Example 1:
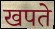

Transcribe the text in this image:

खपते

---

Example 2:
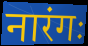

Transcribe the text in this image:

नारंगः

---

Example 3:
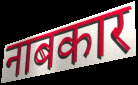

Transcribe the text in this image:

नाबकार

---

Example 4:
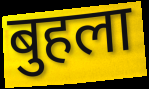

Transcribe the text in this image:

बुहला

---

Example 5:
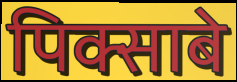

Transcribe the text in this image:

पिक्साबे